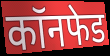
कॉनफेड